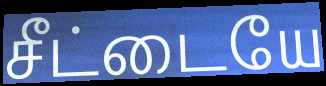
சீட்டையே